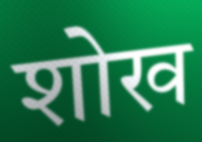
शोख